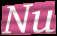
Nu